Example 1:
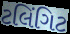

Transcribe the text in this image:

ટલિંગિટ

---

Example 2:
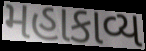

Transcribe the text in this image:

મહાકાવ્ય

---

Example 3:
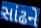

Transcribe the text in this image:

સાંઢને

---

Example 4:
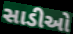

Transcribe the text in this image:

સાડીઓ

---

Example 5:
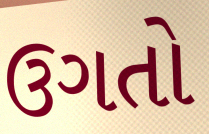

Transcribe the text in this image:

ઉગતો